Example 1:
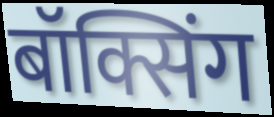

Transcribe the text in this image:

बॉक्सिंग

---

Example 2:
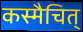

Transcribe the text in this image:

कस्मैचित्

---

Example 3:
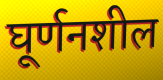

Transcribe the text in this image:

घूर्णनशील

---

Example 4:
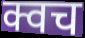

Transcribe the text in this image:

क्वच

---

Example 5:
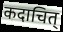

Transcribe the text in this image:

कदाचित्